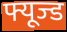
फ्यूज्ड